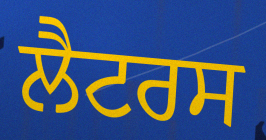
ਲੈਟਰਸ